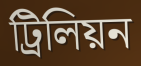
ট্রিলিয়ন